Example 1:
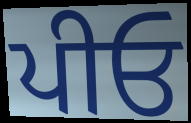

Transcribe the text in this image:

ਪੀਓ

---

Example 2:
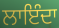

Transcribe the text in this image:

ਲਾਇੰਦਾ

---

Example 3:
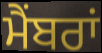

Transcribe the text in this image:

ਮੈਂਬਰਾਂ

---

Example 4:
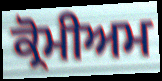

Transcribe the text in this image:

ਕ੍ਰੋਮੀਅਮ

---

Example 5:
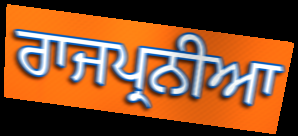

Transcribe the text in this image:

ਰਾਜਪ੍ਰਨੀਆ